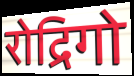
रोद्रिगो